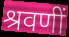
श्रवणीं